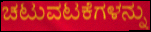
ಚಟುವಟಕೆಗಳನ್ನು